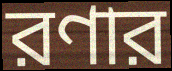
রণার